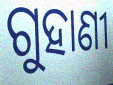
ଗୁହାଣୀ